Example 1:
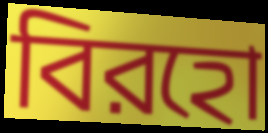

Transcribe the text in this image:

বিরহো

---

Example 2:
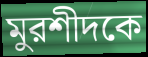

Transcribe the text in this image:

মুরশীদকে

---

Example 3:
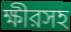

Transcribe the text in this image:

ক্ষীরসহ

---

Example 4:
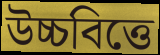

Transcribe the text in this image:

উচ্চবিত্তে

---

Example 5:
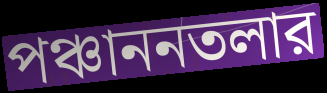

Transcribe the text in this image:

পঞ্চাননতলার